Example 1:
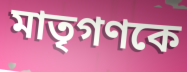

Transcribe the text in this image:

মাতৃগণকে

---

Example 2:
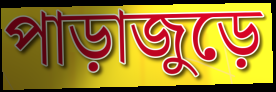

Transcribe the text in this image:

পাড়াজুড়ে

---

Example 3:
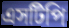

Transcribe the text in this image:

এসটিপি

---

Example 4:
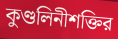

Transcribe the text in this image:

কুণ্ডলিনীশক্তির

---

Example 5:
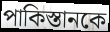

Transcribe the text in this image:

পাকিস্তানকে